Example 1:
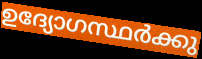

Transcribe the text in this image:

ഉദ്യോഗസ്ഥർക്കു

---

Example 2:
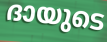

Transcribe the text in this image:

ദായുടെ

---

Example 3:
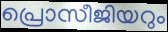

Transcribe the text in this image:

പ്രൊസീജിയറും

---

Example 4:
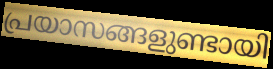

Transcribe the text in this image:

പ്രയാസങ്ങളുണ്ടായി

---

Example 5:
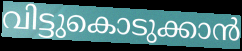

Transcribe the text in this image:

വിട്ടുകൊടുക്കാൻ